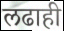
लढाही